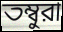
তম্বুরা